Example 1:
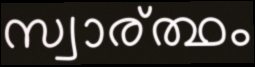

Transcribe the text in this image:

സ്വാര്ത്ഥം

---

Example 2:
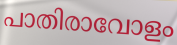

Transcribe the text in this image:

പാതിരാവോളം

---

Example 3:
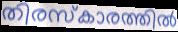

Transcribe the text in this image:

തിരസ്കാരത്തിൽ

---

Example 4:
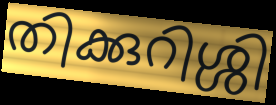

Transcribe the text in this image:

തിക്കുറിശ്ശി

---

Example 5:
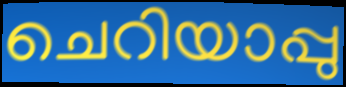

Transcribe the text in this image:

ചെറിയാപ്പു